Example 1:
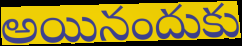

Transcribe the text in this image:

అయినందుకు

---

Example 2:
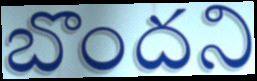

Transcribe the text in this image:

బొందని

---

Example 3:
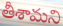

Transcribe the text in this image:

తీశామని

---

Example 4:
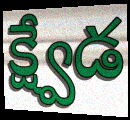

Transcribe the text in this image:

క్ష్వేడ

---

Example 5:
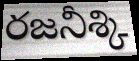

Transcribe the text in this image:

రజనీశ్కి